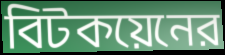
বিটকয়েনের